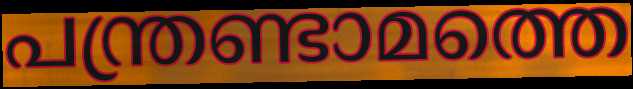
പന്ത്രണ്ടാമത്തെ